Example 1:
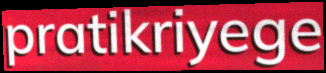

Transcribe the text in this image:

pratikriyege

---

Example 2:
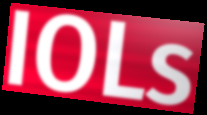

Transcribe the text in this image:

IOLs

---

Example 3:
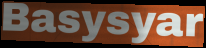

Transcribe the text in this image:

Basysyar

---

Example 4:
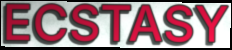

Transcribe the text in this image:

ECSTASY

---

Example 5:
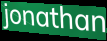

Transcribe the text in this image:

jonathan